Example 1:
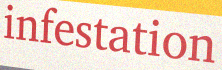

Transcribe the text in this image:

infestation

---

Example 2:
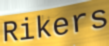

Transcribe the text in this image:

Rikers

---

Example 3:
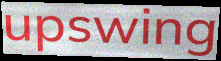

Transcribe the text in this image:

upswing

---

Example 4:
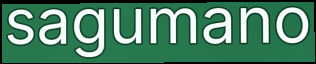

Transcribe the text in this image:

sagumano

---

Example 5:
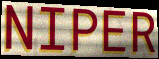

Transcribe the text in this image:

NIPER